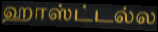
ஹாஸ்ட்டல்ல